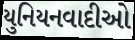
યુનિયનવાદીઓ